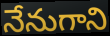
నేనుగాని